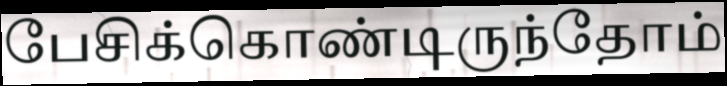
பேசிக்கொண்டிருந்தோம்